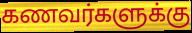
கணவர்களுக்கு